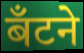
बँटने